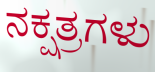
ನಕ್ಷತ್ರಗಳು